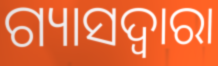
ଗ୍ୟାସଦ୍ଵାରା